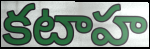
కటాహ